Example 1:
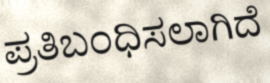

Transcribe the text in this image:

ಪ್ರತಿಬಂಧಿಸಲಾಗಿದೆ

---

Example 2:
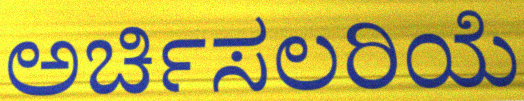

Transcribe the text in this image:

ಅರ್ಚಿಸಲರಿಯೆ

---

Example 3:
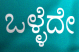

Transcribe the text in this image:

ಒಳ್ಳೆದೇ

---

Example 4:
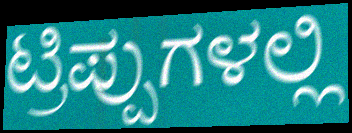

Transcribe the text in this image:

ಟ್ರಿಪ್ಪುಗಳಲ್ಲಿ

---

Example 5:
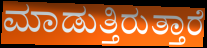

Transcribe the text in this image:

ಮಾಡುತ್ತಿರುತ್ತಾರೆ